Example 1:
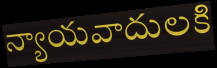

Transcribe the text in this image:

న్యాయవాదులకి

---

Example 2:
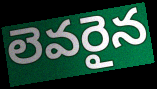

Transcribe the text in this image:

లెవరైన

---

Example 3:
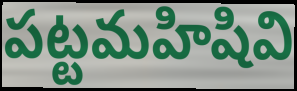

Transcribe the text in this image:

పట్టమహిషివి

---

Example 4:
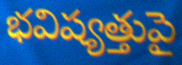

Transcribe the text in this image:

భవిష్యత్తుపై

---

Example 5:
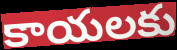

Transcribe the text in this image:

కాయలకు